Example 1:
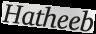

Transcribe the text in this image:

Hatheeb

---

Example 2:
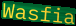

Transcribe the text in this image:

Wasfia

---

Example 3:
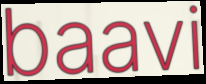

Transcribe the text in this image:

baavi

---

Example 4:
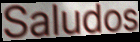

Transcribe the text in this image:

Saludos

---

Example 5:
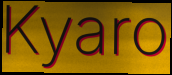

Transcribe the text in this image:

Kyaro